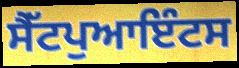
ਸੈੱਟਪੁਆਇੰਟਸ